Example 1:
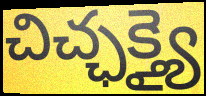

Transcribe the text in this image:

చిచ్ఛక్త్యై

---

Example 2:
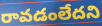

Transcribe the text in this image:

రావడంలేదని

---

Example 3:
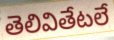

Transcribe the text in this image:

తెలివితేటలే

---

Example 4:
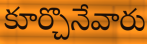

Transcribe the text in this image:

కూర్చొనేవారు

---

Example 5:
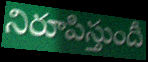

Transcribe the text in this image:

నిరూపిస్తుందీ